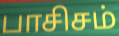
பாசிசம்